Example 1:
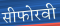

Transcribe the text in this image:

सीफोरवी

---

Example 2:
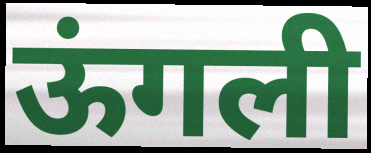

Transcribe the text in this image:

ऊंगली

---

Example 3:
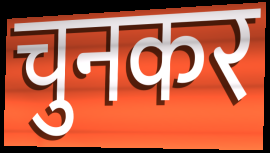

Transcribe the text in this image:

चुनकर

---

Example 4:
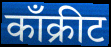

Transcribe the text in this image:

काँक्रीट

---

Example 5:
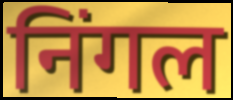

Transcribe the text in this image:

निंगल